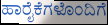
ಹಾರೈಕೆಗಳೊಂದಿಗೆ